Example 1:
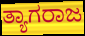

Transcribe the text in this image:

ತ್ಯಾಗರಾಜ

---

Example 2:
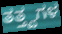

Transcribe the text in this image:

ತತ್ತ್ವಗಳ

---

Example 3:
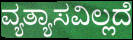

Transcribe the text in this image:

ವ್ಯತ್ಯಾಸವಿಲ್ಲದೆ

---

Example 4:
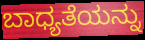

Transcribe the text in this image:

ಬಾಧ್ಯತೆಯನ್ನು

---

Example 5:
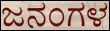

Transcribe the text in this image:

ಜನಂಗಳ